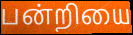
பன்றியை